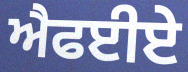
ਐਫਈਏ